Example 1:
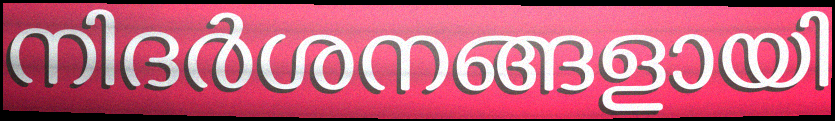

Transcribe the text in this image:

നിദർശനങ്ങളായി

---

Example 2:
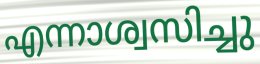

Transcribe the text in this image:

എന്നാശ്വസിച്ചു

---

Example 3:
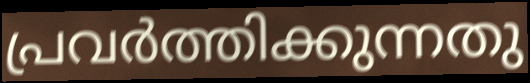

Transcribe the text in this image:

പ്രവർത്തിക്കുന്നതു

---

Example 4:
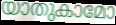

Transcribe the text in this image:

യാതുകാമോ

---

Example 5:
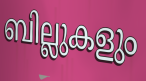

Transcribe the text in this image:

ബില്ലുകളും